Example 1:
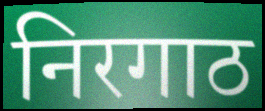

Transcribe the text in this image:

निरगाठ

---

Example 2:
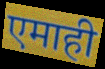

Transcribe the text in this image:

एमाही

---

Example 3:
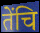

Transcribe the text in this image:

तेंचि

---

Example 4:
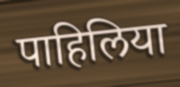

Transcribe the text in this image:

पाहिलिया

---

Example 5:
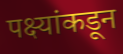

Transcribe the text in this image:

पक्ष्यांकडून